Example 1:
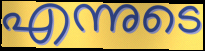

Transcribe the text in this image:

എന്നുടെ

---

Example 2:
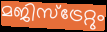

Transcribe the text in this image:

മജിസ്ട്രേറ്റും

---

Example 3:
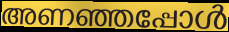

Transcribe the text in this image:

അണഞ്ഞപ്പോൾ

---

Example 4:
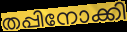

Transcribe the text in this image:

തപ്പിനോക്കി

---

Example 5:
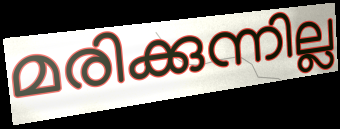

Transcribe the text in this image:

മരിക്കുന്നില്ല